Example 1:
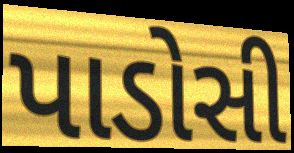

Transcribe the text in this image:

પાડોસી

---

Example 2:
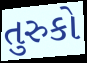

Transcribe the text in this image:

તુરુકો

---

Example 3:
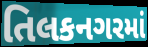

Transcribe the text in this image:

તિલકનગરમાં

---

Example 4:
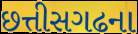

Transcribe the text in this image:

છત્તીસગઢના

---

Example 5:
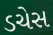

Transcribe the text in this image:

ડચેસ